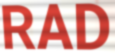
RAD